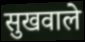
सुखवाले